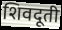
शिवदूती